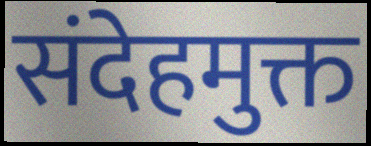
संदेहमुक्त